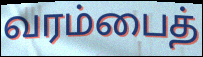
வரம்பைத்